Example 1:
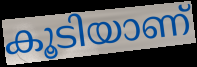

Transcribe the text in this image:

കൂടിയാണ്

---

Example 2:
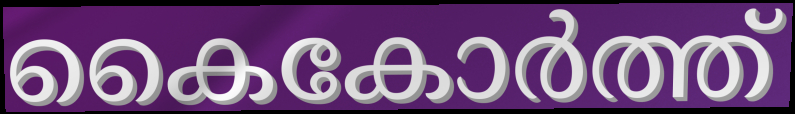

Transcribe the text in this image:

കൈകോർത്ത്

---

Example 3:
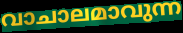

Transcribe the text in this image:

വാചാലമാവുന്ന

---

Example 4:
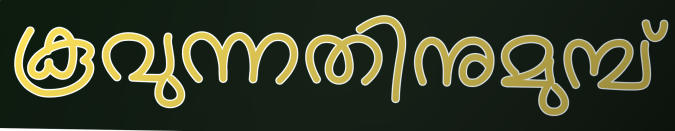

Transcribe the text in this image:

കൂവുന്നതിനുമുമ്പ്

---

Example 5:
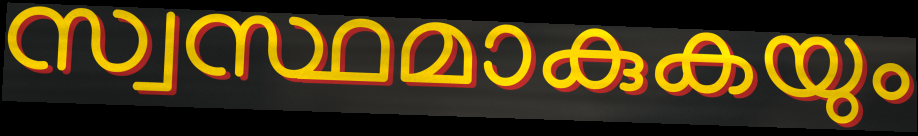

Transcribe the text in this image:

സ്വസ്ഥമാകുകയും